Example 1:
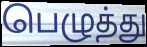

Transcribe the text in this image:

பெழுத்து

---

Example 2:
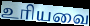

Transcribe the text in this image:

உரியவை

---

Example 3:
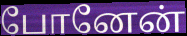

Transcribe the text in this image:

போனேன்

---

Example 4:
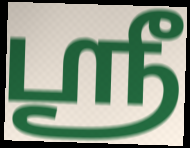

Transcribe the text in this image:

ஸ்ரீ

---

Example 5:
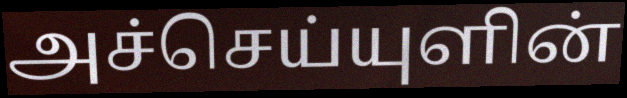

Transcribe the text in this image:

அச்செய்யுளின்